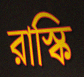
রাস্কি